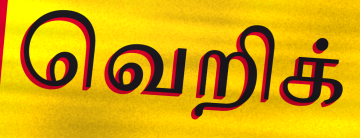
வெறிக்